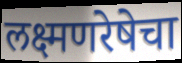
लक्ष्मणरेषेचा